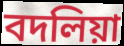
বদলিয়া